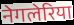
नेगलेरिया